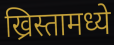
ख्रिस्तामध्ये